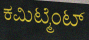
ಕಮಿಟ್ಮೆಂಟ್